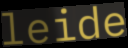
leide